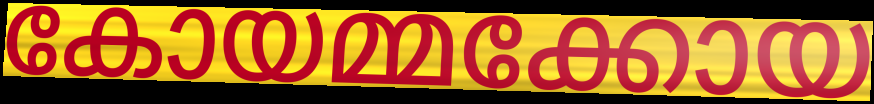
കോയമ്മക്കോയ